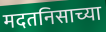
मदतनिसाच्या